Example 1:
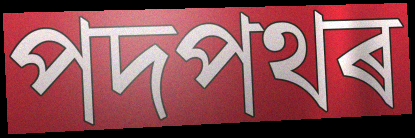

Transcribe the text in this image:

পদপথৰ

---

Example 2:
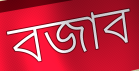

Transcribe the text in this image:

বজাব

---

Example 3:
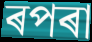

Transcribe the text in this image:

ৰপৰা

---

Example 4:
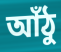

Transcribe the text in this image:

আঁঠু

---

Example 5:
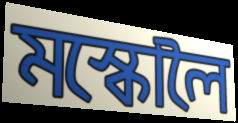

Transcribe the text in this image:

মস্কোলৈ